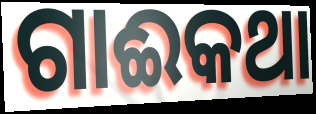
ଗାଈକଥା